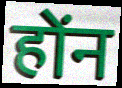
होंन